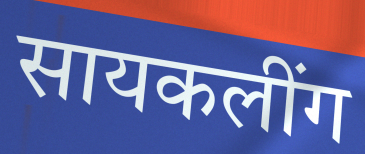
सायकलींग